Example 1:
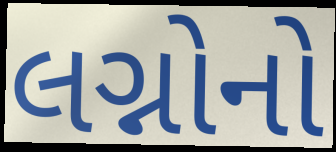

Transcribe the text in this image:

લગ્નોનો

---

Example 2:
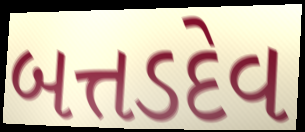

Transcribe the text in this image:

બત્તડદેવ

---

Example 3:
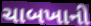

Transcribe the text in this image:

ચાબખાની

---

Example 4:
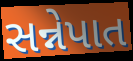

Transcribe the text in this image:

સન્નેપાત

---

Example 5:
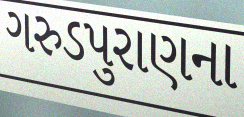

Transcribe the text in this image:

ગરુડપુરાણના